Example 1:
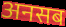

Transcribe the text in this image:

अनसब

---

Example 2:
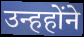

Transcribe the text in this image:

उन्हहोंने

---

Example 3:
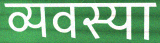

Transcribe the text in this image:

व्यवस्या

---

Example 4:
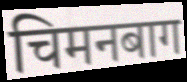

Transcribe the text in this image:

चिमनबाग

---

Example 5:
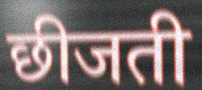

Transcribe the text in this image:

छीजती